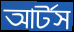
আর্টস